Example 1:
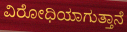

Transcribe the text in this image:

ವಿರೋಧಿಯಾಗುತ್ತಾನೆ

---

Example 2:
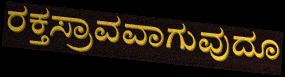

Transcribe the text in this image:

ರಕ್ತಸ್ರಾವವಾಗುವುದೂ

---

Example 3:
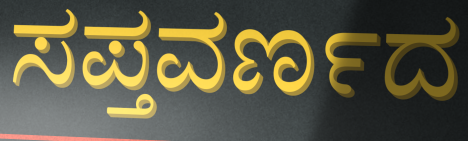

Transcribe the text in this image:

ಸಪ್ತವರ್ಣದ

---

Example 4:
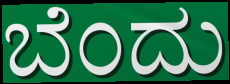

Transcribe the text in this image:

ಬೆಂದು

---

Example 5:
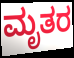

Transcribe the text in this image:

ಮೃತರ